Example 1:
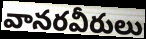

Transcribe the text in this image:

వానరవీరులు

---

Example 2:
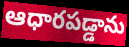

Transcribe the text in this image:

ఆధారపడ్డాను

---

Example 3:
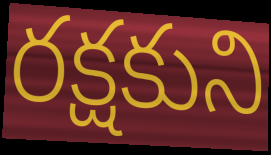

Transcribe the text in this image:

రక్షకుని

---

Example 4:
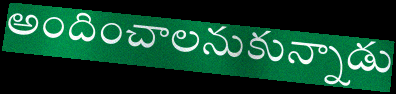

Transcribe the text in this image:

అందించాలనుకున్నాడు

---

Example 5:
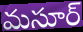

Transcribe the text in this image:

మసూర్